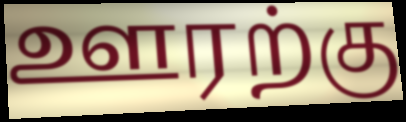
ஊரற்கு